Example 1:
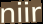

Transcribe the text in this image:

niir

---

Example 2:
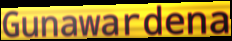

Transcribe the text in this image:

Gunawardena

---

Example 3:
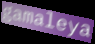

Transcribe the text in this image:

gamaleya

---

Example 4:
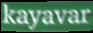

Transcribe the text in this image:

kayavar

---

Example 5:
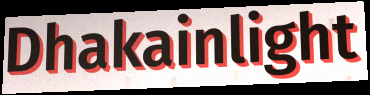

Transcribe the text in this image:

Dhakainlight